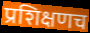
प्रशिक्षणच